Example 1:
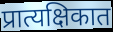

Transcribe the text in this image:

प्रात्यक्षिकात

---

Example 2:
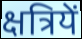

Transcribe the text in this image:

क्षत्रियें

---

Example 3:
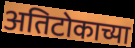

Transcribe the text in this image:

अतिटोकाच्या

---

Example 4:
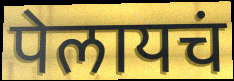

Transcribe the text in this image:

पेलायचं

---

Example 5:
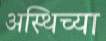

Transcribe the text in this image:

अस्थिच्या